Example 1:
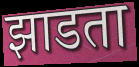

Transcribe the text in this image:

झाडता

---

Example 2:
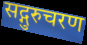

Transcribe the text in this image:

सद्गुरुचरण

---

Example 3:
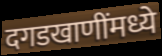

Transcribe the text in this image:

दगडखाणींमध्ये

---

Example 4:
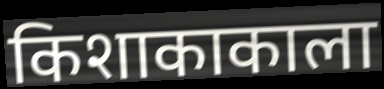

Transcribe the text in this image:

किशाकाकाला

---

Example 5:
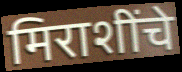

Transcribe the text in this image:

मिराशींचे